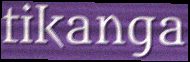
tikanga